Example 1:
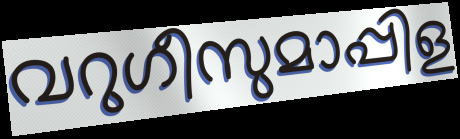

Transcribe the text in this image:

വറുഗീസുമാപ്പിള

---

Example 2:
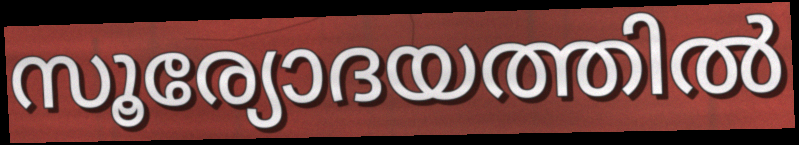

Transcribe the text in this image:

സൂര്യോദയത്തിൽ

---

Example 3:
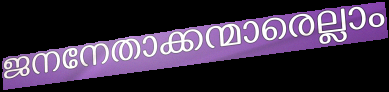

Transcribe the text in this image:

ജനനേതാക്കന്മാരെല്ലാം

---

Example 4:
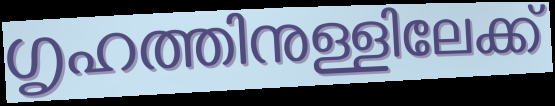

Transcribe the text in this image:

ഗൃഹത്തിനുള്ളിലേക്ക്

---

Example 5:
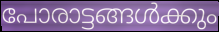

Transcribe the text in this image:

പോരാട്ടങ്ങൾക്കും